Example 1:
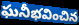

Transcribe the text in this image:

ఘనీభవించిన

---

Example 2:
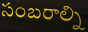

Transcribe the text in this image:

సంబరాల్ని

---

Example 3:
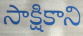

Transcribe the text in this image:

సాక్షికాని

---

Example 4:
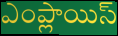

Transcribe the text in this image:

ఎంప్లాయిస్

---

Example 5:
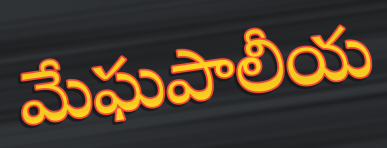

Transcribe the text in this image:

మేఘపాలీయ